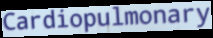
Cardiopulmonary